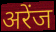
अरेंज